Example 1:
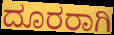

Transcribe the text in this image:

ದೂರರಾಗಿ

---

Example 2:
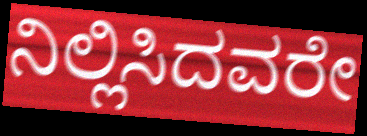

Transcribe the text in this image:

ನಿಲ್ಲಿಸಿದವರೇ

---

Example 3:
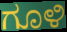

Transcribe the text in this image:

ಗೂಳಿ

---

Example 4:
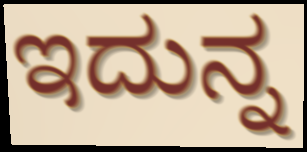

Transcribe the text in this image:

ಇದುನ್ನ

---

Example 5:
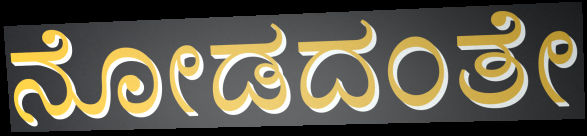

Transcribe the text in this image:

ನೋಡದಂತೇ